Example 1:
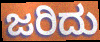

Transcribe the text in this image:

ಜರಿದು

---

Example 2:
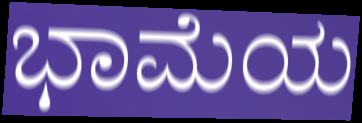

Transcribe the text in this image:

ಭಾಮೆಯ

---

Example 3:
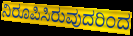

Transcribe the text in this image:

ನಿರೂಪಿಸಿರುವುದರಿಂದ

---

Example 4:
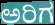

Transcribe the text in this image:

ಅರಿಗ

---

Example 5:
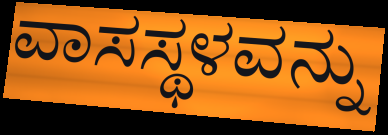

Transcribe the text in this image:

ವಾಸಸ್ಥಳವನ್ನು